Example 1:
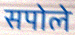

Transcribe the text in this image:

सपोले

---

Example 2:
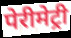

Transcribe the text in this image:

पेरीमेट्री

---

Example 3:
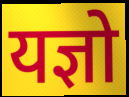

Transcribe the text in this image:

यज्ञो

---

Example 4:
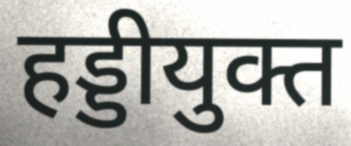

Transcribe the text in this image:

हड्डीयुक्त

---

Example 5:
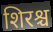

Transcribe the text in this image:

शिरश्च